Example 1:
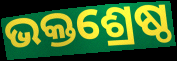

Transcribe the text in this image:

ଭକ୍ତଶ୍ରେଷ୍ଠ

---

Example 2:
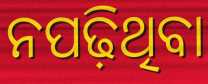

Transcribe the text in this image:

ନପଢ଼ିଥିବା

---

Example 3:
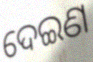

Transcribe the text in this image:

ଦେଇଣ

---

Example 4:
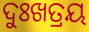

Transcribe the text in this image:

ଦୁଃଖତ୍ରୟ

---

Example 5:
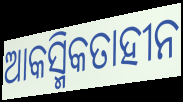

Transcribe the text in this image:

ଆକସ୍ମିକତାହୀନ